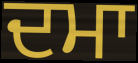
ਦਮਾ